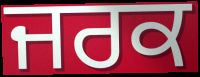
ਜਰਕ